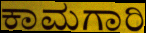
ಕಾಮಗಾರಿ